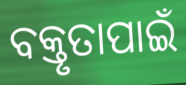
ବକ୍ତୃତାପାଇଁ